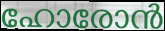
ഹോരോൻ